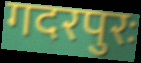
गदरपुरः